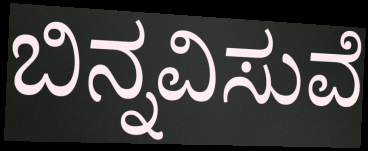
ಬಿನ್ನವಿಸುವೆ